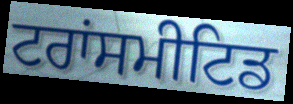
ਟਰਾਂਸਮੀਟਿਡ